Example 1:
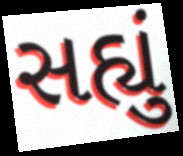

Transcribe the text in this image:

સહ્યું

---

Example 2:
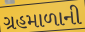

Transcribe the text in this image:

ગ્રહમાળાની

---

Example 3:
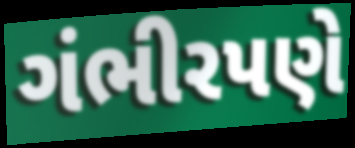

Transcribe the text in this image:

ગંભીરપણે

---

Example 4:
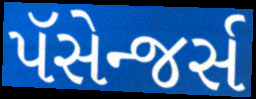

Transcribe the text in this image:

પૅસેન્જર્સ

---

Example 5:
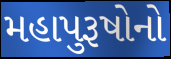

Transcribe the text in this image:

મહાપુરૂષોનો